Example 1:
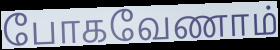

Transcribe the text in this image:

போகவேணாம்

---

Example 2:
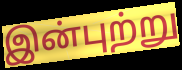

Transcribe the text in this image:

இன்புற்று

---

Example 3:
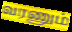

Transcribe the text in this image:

வரணும்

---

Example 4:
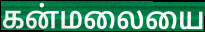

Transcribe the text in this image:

கன்மலையை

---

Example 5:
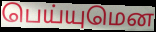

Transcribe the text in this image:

பெய்யுமென